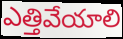
ఎత్తివేయాలి